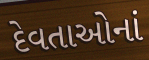
દેવતાઓનાં